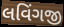
લવિંગજી